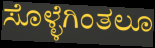
ಸೊಳ್ಳೆಗಿಂತಲೂ